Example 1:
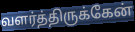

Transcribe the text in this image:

வளர்த்திருக்கேன்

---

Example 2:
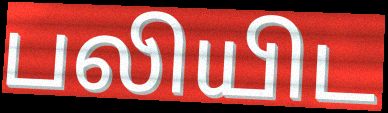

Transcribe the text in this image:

பலியிட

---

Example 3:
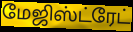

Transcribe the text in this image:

மேஜிஸ்ட்ரேட்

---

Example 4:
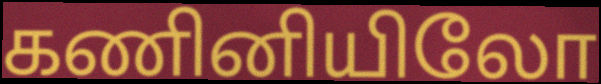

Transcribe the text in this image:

கணினியிலோ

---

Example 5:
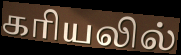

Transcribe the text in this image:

கரியலில்